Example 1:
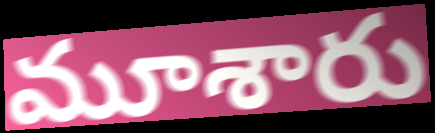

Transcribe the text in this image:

మూశారు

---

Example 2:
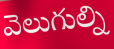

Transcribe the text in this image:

వెలుగుల్ని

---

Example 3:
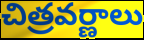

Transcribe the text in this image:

చిత్రవర్ణాలు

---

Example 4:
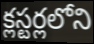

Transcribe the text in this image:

క్లస్టర్లలోని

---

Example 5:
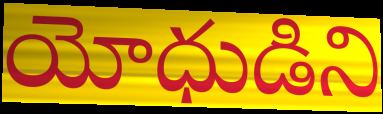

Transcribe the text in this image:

యోధుడిని